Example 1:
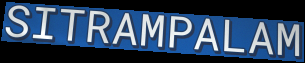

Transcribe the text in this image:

SITRAMPALAM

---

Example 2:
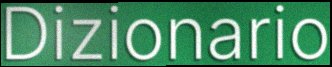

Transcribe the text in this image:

Dizionario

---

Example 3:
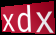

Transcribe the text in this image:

xdx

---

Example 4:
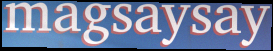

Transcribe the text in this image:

magsaysay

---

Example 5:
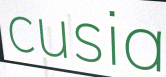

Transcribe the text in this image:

cusia